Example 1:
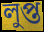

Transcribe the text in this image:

লুপ্ত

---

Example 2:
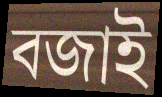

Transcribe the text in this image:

বজাই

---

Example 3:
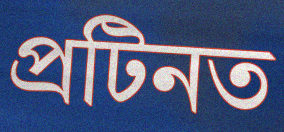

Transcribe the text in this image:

প্ৰটিনত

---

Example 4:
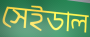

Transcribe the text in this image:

সেইডাল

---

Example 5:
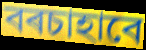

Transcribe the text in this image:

বৰচাহাবে